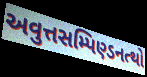
અવુત્તસમ્પિણ્ડનત્થો